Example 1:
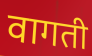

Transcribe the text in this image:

वागती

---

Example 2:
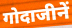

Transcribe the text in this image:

गोदाजीनें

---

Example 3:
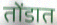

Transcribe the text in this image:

तोंडात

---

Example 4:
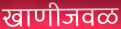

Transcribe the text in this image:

खाणीजवळ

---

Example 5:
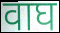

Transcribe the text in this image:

वाघ